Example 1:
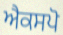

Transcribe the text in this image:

ਐਕਸਪੋ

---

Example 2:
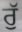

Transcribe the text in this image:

ਰੁੱ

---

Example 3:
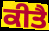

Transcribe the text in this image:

ਕੀਤੈ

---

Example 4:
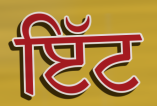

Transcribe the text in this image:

ਇੱਟ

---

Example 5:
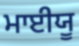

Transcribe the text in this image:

ਮਾਈਯੂ